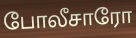
போலீசாரோ